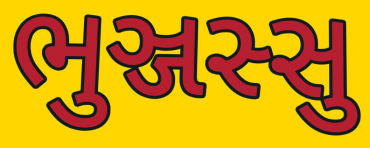
ભુઞ્જસ્સુ